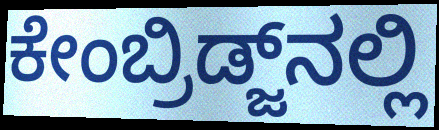
ಕೇಂಬ್ರಿಡ್ಜ್‌ನಲ್ಲಿ